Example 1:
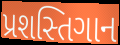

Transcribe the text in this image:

પ્રશસ્તિગાન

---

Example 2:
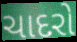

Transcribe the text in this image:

ચાદરો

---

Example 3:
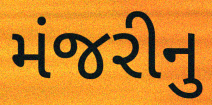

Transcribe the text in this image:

મંજરીનુ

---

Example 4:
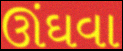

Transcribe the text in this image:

ઊંઘવા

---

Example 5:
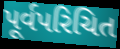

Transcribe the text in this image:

પૂર્વપરિચિત